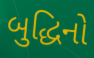
બુદ્ધિનો